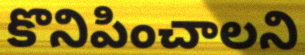
కొనిపించాలని